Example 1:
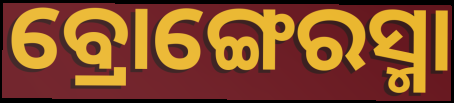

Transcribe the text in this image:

ବ୍ରୋଙ୍ଗେରସ୍ମା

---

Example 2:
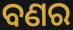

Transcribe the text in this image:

ବଣର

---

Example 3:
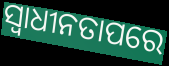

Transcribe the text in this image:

ସ୍ୱାଧୀନତାପରେ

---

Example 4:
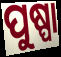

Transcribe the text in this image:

ପୁଷ୍ପା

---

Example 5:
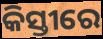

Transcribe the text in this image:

କିସ୍ତୀରେ